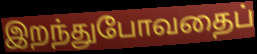
இறந்துபோவதைப்